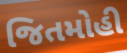
જિતમોહી